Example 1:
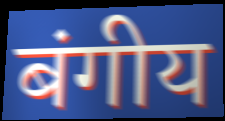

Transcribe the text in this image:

बंगीय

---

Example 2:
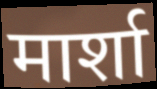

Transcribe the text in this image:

मार्शा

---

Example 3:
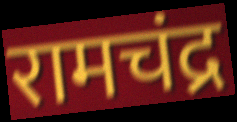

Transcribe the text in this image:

रामचंद्र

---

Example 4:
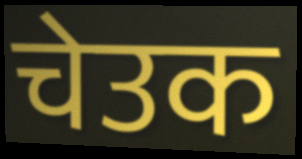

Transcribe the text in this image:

चेउक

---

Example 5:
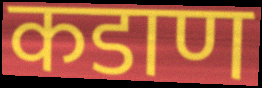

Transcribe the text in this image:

कडाण